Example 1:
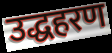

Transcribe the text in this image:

उद्धहरण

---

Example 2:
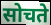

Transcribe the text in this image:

सोचते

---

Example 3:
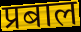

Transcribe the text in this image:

प्रबाल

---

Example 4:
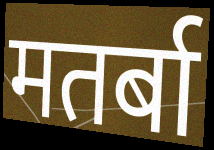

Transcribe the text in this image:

मतर्बा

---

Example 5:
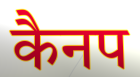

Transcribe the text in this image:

कैनप